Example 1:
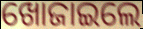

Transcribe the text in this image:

ଖୋଜାଇଲେ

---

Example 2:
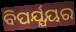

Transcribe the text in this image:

ବିପର୍ଯ୍ଯୟର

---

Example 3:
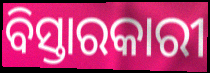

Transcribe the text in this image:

ବିସ୍ତାରକାରୀ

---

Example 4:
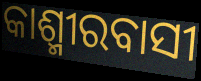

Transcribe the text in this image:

କାଶ୍ମୀରବାସୀ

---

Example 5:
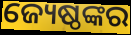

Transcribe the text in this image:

ଜ୍ୟେଷ୍ଠଙ୍କର